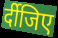
र्दीजिए